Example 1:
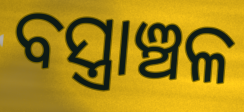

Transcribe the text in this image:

ବସ୍ତ୍ରାଞ୍ଚଳ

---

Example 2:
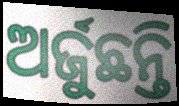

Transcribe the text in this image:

ଅର୍ଜୁଛନ୍ତି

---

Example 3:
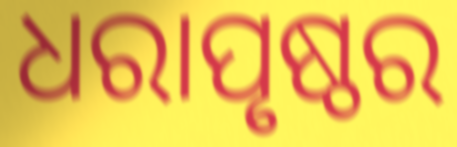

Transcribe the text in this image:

ଧରାପୃଷ୍ଠର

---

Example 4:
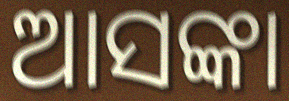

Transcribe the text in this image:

ଆସଙ୍କା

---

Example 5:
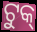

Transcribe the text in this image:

ଟୁକ୍